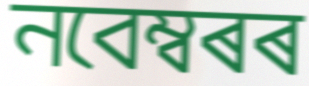
নবেম্বৰৰ